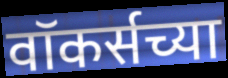
वॉकर्सच्या